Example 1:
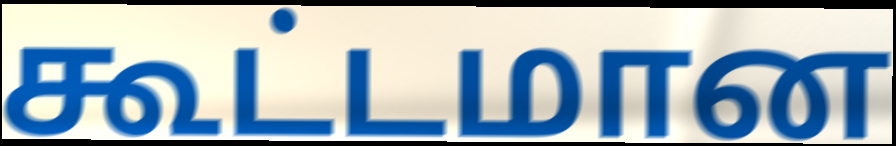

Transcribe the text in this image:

கூட்டமான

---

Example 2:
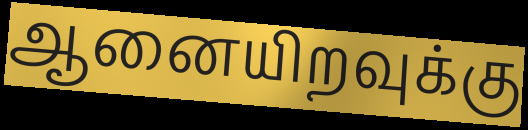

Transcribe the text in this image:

ஆனையிறவுக்கு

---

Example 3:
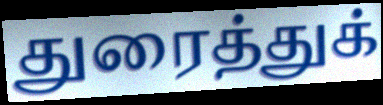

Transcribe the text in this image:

துரைத்துக்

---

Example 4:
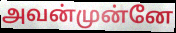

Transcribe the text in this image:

அவன்முன்னே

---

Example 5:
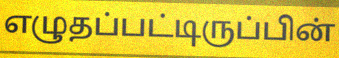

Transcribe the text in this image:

எழுதப்பட்டிருப்பின்